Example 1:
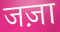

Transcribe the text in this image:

जज़ा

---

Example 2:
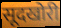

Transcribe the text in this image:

सूदखोरी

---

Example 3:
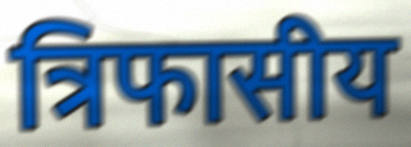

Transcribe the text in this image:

त्रिफासीय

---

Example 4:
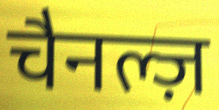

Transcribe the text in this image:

चैनल्ज़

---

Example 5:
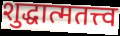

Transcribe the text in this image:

शुद्धात्मतत्त्व